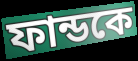
ফান্ডকে